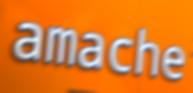
amache